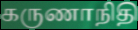
கருணாநிதி